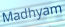
Madhyam